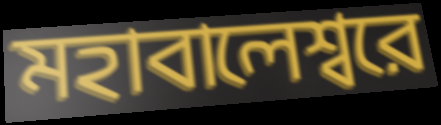
মহাবালেশ্বরে